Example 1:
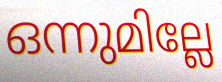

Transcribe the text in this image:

ഒന്നുമില്ലേ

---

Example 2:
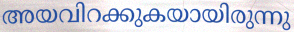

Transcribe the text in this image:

അയവിറക്കുകയായിരുന്നു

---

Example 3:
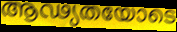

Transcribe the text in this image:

ആഢ്യതയോടെ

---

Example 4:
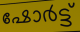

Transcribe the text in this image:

ഷോർട്ട്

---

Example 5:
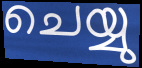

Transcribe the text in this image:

ചെയ്യു